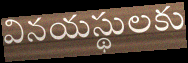
వినయస్థులకు